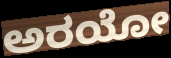
ಅರಯೋ